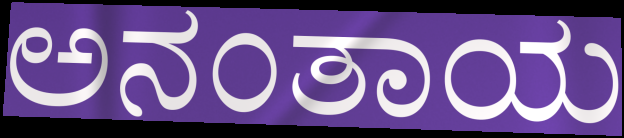
ಅನಂತಾಯ